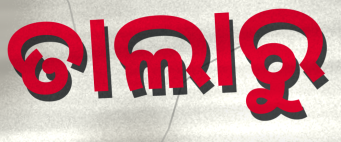
ତାଲାରୁ